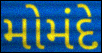
મોમંદે